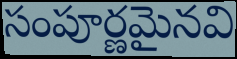
సంపూర్ణమైనవి